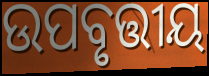
ଉପବୃତ୍ତୀୟ